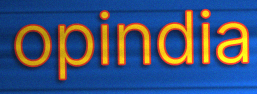
opindia